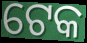
ଟେକ